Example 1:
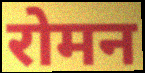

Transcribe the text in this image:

रोमन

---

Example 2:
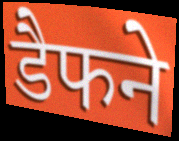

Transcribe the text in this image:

डैफने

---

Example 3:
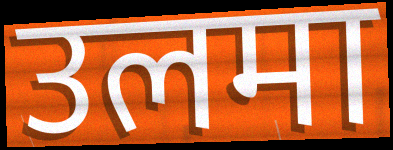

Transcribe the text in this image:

उलमा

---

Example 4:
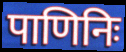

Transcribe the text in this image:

पाणिनिः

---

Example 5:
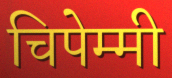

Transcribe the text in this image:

चिपेम्मी